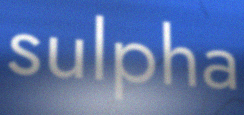
sulpha